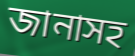
জানাসহ